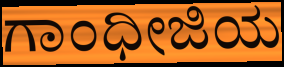
ಗಾಂಧೀಜಿಯ